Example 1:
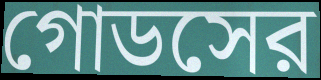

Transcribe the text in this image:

গোডসের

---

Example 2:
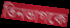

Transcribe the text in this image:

তিনভাগকে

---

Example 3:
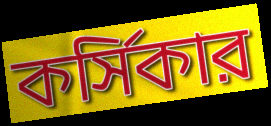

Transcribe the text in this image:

কর্সিকার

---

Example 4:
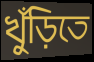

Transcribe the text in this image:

খুঁড়িতে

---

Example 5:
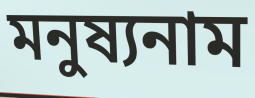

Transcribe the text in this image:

মনুষ্যনাম